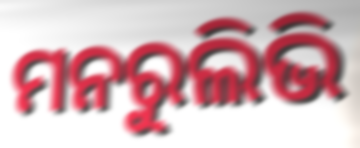
ମନରୁଲିଭି